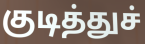
குடித்துச்